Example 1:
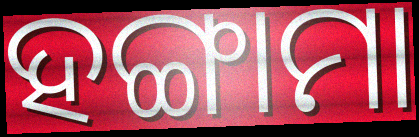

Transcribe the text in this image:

ହଙ୍ଗାମା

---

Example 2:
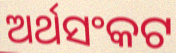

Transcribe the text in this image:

ଅର୍ଥସଂକଟ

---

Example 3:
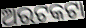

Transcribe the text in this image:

ଅରଟକଟା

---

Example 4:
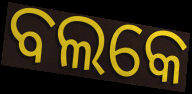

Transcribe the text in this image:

ବଲକେ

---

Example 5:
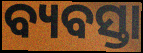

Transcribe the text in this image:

ବ୍ୟବସ୍ତା